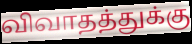
விவாதத்துக்கு